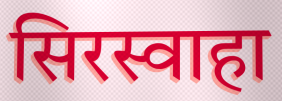
सिरस्वाहा